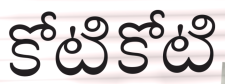
కోటికోటి